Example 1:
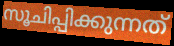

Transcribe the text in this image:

സൂചിപ്പിക്കുന്നത്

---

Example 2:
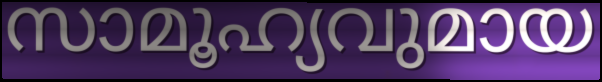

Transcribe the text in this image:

സാമൂഹ്യവുമായ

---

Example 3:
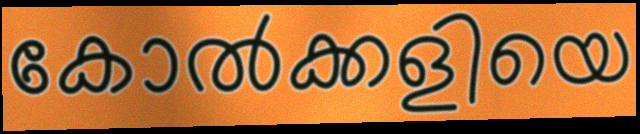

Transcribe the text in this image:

കോൽക്കളിയെ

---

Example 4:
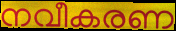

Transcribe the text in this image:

നവീകരണ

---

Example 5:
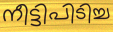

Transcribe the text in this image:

നീട്ടിപിടിച്ച